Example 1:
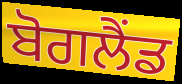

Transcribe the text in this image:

ਬੋਗਲੈਂਡ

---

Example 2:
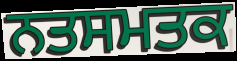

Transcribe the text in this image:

ਨਤਸਮਤਕ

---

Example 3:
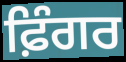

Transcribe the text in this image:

ਫ਼ਿੰਗਰ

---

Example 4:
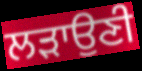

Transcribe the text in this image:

ਲੜਾਉਣੀ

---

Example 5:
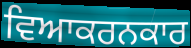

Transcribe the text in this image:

ਵਿਆਕਰਨਕਾਰ